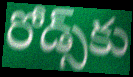
రోడ్స్‌కు